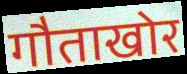
गौताखोर